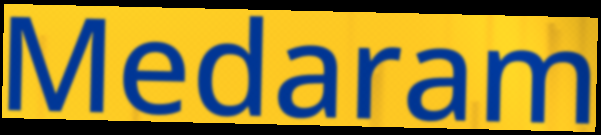
Medaram